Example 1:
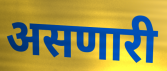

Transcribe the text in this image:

असणारी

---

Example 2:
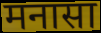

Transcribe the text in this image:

मनासा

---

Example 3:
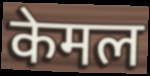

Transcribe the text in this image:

केमल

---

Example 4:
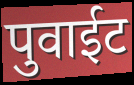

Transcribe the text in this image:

पुवाईट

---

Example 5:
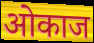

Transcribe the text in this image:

ओकाज